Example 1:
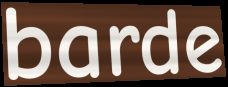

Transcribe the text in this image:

barde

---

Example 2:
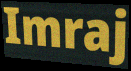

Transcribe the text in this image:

Imraj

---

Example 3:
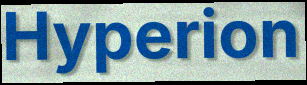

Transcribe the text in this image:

Hyperion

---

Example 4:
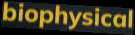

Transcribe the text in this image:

biophysical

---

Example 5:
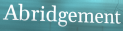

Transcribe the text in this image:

Abridgement